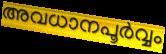
അവധാനപൂർവ്വം